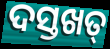
ଦସ୍ତଖତ୍